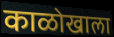
काळोखाला